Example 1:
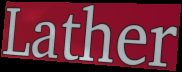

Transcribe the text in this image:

Lather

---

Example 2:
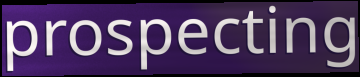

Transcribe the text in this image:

prospecting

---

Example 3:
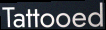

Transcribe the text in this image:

Tattooed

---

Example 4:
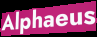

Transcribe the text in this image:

Alphaeus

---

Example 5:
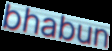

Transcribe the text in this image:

bhabun